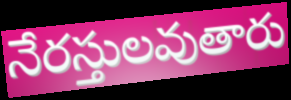
నేరస్తులవుతారు